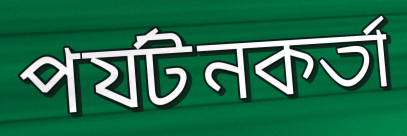
পর্যটনকর্তা